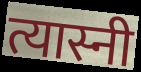
त्यास्नी